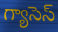
గ్యాసెస్